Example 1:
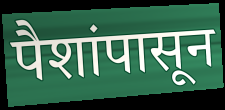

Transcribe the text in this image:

पैशांपासून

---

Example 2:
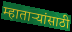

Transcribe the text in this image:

म्हाताऱ्यांसाठी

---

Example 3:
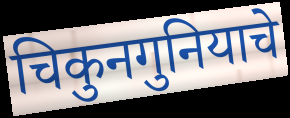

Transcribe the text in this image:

चिकुनगुनियाचे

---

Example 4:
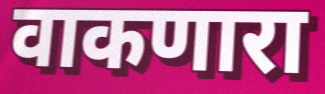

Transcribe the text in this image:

वाकणारा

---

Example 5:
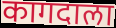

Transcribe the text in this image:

कागदाला